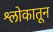
श्लोकातून